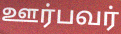
ஊர்பவர்